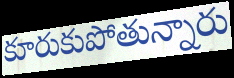
కూరుకుపోతున్నారు